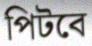
পিটবে